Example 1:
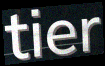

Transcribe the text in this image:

tier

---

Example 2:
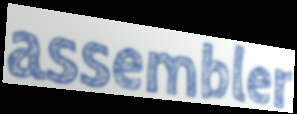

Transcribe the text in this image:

assembler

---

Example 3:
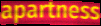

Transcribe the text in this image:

apartness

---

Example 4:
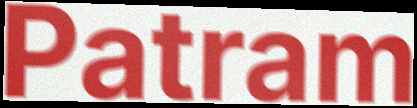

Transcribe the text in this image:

Patram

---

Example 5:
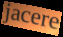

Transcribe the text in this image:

jacere